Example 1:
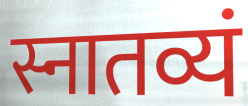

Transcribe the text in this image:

स्नातव्यं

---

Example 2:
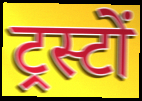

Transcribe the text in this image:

ट्रस्टों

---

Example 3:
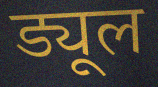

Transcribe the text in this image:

ड्यूल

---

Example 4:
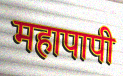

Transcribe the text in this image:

महापापी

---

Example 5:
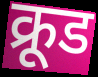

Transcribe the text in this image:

क्रूड